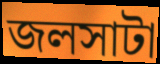
জলসাটা